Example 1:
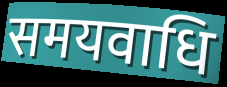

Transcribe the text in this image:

समयवाधि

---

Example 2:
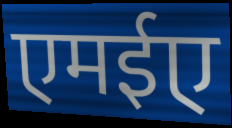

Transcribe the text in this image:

एमईए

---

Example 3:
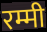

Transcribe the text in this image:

रम्मी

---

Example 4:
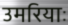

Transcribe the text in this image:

उमरियाः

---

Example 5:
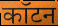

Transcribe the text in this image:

कॉटन